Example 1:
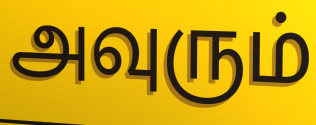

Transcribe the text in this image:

அவுரும்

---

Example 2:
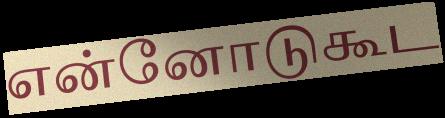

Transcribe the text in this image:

என்னோடுகூட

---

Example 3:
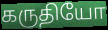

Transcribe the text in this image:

கருதியோ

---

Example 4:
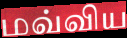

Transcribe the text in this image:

மவ்விய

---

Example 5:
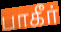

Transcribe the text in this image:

பாகீர்